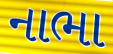
નાભા